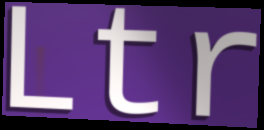
Ltr